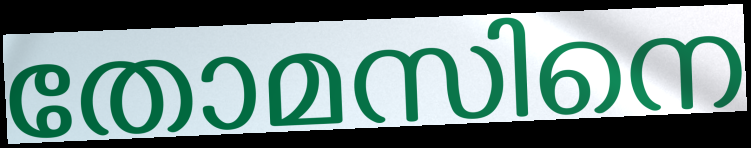
തോമസിനെ